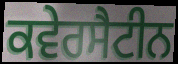
ਕਵੇਰਸੈਟੀਨ